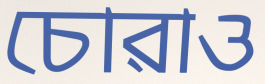
চোৱাও